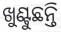
ଖୁଣ୍ଟୁଛନ୍ତି